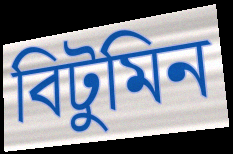
বিটুমিন